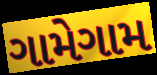
ગામેગામ